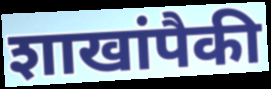
शाखांपैकी